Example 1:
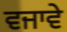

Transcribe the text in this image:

ਵਜਾਵੇ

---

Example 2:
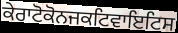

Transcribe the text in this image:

ਕੇਰਾਟੋਕੋਨਜਕਟਿਵਾਇਟਿਸ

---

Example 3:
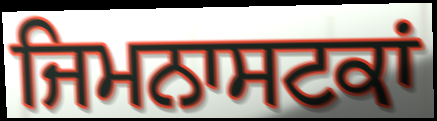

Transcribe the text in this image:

ਜਿਮਨਾਸਟਕਾਂ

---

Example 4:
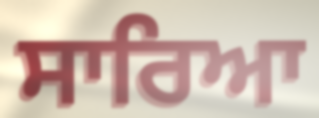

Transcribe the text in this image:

ਸਾਰਿਆ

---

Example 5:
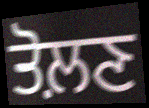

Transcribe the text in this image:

ਤੋਲ਼ਣ